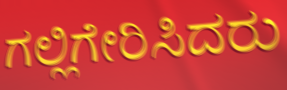
ಗಲ್ಲಿಗೇರಿಸಿದರು